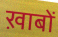
ख़ाबों